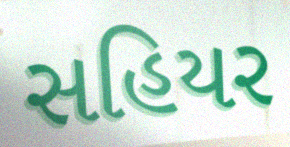
સહિયર